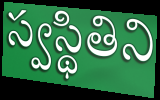
స్వస్థితిని